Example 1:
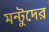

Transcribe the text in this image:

মন্টুদের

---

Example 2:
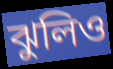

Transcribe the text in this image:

ঝুলিও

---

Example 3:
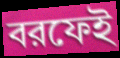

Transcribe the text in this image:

বরফেই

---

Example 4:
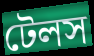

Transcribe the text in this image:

টেলস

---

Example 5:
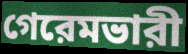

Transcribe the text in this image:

গেরেমভারী